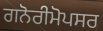
ਗਨੋਰੀਮੋਪਸਰ